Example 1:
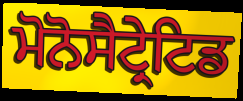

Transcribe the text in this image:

ਮੋਨੋਸੈਟ੍ਰੇਟਿਡ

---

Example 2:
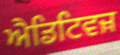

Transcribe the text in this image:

ਐਡਿਟਿਵਜ਼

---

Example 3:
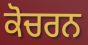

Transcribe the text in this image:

ਕੋਚਰਨ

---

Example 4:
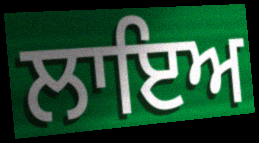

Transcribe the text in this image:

ਲਾਇਅ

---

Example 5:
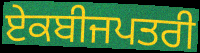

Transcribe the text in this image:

ਏਕਬੀਜਪਤਰੀ